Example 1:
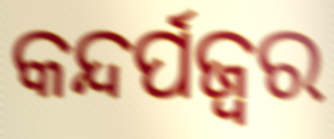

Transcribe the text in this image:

କନ୍ଦର୍ପଜ୍ବର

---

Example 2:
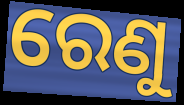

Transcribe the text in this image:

ରେଣୁ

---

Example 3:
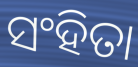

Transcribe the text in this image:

ସଂହିତା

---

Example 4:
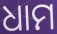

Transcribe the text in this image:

ଧାମ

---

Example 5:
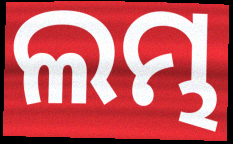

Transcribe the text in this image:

ଲମ୍ଭ